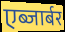
एब्जार्बर